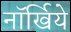
नॉर्खिये